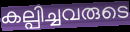
കല്പിച്ചവരുടെ